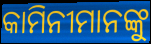
କାମିନୀମାନଙ୍କୁ